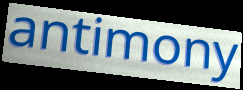
antimony